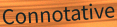
Connotative